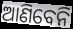
ଆଣିବେନି